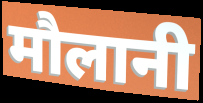
मौलानी